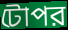
টোপর